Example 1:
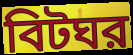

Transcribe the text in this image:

বিটঘর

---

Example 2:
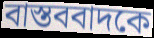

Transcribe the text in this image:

বাস্তববাদকে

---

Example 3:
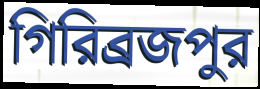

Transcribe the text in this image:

গিরিব্রজপুর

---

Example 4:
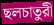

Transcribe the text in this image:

ছলচাতুরী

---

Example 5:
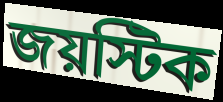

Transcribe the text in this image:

জয়স্টিক